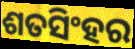
ଶତସିଂହର